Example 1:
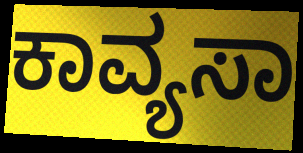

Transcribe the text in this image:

ಕಾವ್ಯಸಾ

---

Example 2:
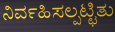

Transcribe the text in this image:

ನಿರ್ವಹಿಸಲ್ಪಟ್ಟಿತು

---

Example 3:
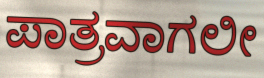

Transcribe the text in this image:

ಪಾತ್ರವಾಗಲೀ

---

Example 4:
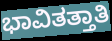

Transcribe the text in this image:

ಭಾವಿತತ್ತಾತಿ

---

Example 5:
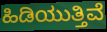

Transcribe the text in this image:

ಹಿಡಿಯುತ್ತಿವೆ